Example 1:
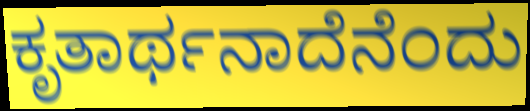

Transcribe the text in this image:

ಕೃತಾರ್ಥನಾದೆನೆಂದು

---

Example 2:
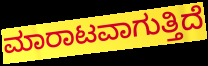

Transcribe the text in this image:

ಮಾರಾಟವಾಗುತ್ತಿದೆ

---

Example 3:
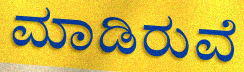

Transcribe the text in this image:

ಮಾಡಿರುವೆ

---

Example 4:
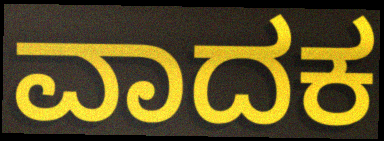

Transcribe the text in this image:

ವಾದಕ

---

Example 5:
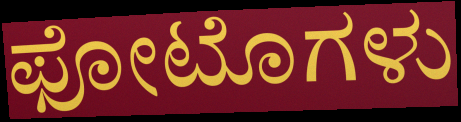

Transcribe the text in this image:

ಫೋಟೊಗಳು